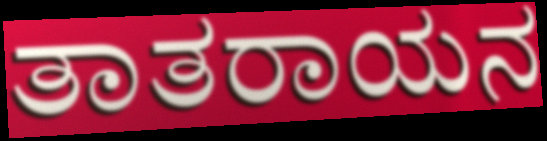
ತಾತರಾಯನ